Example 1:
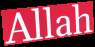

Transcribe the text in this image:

Allah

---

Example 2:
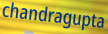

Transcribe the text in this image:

chandragupta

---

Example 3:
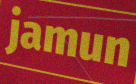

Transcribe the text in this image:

jamun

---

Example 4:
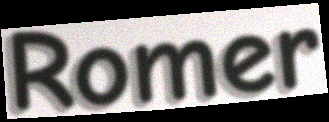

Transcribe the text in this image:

Romer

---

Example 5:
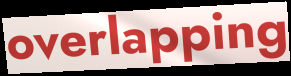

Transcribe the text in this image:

overlapping